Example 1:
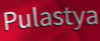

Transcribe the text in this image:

Pulastya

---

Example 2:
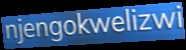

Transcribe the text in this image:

njengokwelizwi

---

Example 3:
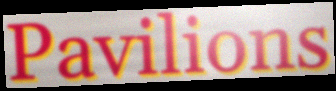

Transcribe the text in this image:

Pavilions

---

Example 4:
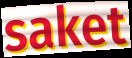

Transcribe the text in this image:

saket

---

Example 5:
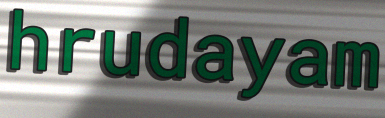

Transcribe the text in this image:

hrudayam